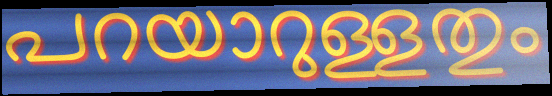
പറയാറുള്ളതും